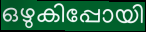
ഒഴുകിപ്പോയി